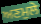
ਅਣਮੁਲੇ